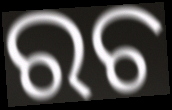
ରଚ